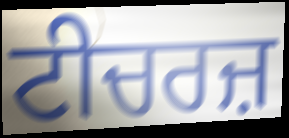
ਟੀਚਰਜ਼